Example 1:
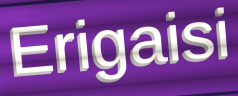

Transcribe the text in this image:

Erigaisi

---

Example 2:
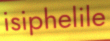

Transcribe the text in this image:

isiphelile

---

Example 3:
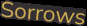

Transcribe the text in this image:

Sorrows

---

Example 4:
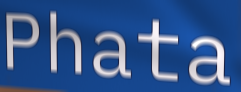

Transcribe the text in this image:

Phata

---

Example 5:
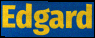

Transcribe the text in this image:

Edgard